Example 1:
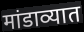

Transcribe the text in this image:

मांडाव्यात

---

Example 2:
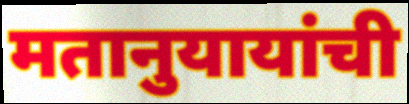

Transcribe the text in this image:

मतानुयायांची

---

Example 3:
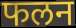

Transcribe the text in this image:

फलन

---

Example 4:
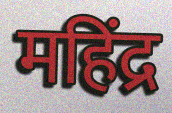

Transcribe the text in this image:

महिंद्र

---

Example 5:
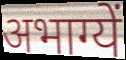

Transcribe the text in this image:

अभाग्यें